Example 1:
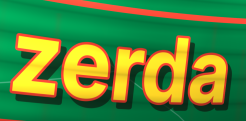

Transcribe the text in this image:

zerda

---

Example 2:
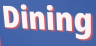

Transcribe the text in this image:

Dining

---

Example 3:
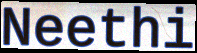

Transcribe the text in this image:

Neethi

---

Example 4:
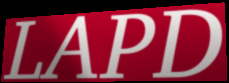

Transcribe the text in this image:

LAPD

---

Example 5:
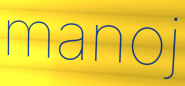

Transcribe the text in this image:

manoj